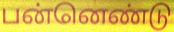
பன்னெண்டு